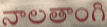
నాలతాంగి